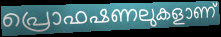
പ്രൊഫഷണലുകളാണ്